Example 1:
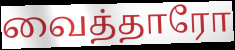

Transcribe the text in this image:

வைத்தாரோ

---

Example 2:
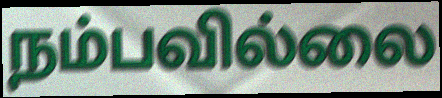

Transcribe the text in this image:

நம்பவில்லை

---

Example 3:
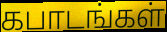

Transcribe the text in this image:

கபாடங்கள்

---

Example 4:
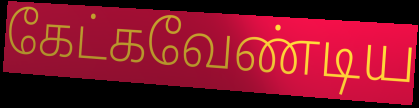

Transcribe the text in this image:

கேட்கவேண்டிய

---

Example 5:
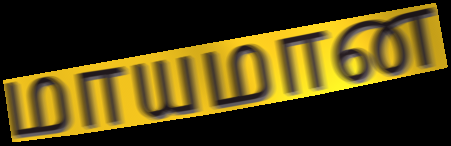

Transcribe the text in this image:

மாயமான